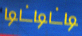
டிட்டிட்டி